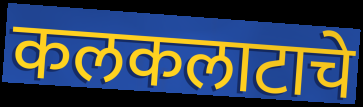
कलकलाटाचे